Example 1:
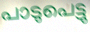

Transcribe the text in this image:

പാടുപെട്ടു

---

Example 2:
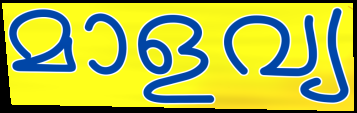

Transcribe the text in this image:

മാളവ്യ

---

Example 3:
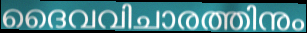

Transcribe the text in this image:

ദൈവവിചാരത്തിനും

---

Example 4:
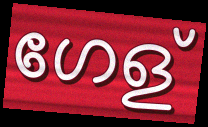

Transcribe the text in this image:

ഗേള്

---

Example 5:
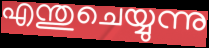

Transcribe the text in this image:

എന്തുചെയ്യുന്നു